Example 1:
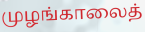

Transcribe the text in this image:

முழங்காலைத்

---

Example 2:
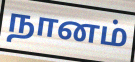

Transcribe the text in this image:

நானம்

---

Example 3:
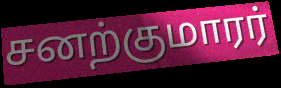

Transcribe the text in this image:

சனற்குமாரர்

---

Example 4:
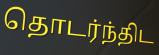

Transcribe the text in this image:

தொடர்ந்திட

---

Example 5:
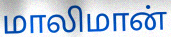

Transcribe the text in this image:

மாலிமான்